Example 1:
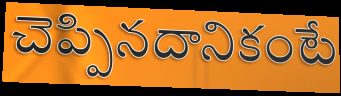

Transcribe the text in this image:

చెప్పినదానికంటే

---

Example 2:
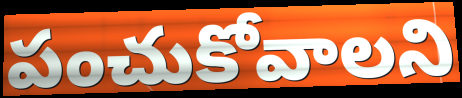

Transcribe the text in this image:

పంచుకోవాలని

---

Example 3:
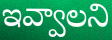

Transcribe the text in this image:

ఇవ్వాలని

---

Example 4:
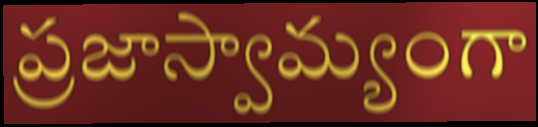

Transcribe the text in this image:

ప్రజాస్వామ్యంగా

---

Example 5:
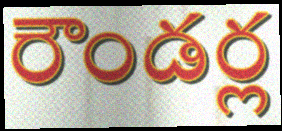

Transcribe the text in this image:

రౌండర్ల